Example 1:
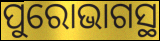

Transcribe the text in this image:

ପୁରୋଭାଗସ୍ଥ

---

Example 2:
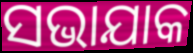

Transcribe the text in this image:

ସଭାଯାକ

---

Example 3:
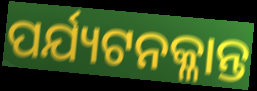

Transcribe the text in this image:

ପର୍ଯ୍ୟଟନକ୍ଳାନ୍ତ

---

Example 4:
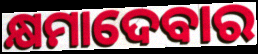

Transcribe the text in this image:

କ୍ଷମାଦେବାର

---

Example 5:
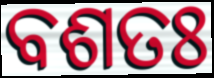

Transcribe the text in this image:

ବଶତଃ